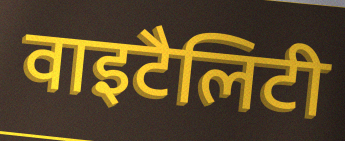
वाइटैलिटी